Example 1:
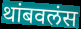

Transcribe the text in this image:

थांबवलंस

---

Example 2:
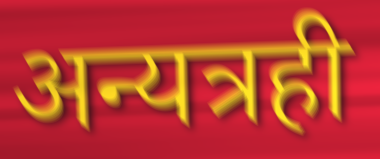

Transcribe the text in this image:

अन्यत्रही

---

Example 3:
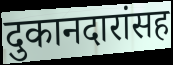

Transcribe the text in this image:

दुकानदारांसह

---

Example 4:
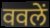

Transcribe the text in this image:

ववलें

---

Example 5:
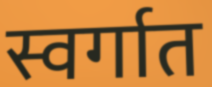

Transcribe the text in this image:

स्वर्गात